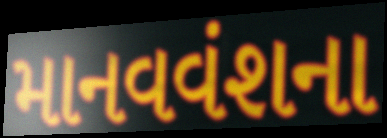
માનવવંશના